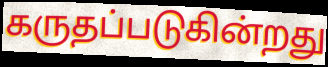
கருதப்படுகின்றது